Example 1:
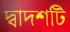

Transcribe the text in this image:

দ্বাদশটি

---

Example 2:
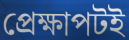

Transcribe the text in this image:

প্রেক্ষাপটই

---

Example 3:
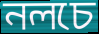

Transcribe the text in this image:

নলচে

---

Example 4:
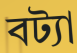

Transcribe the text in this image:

বট্যা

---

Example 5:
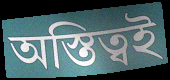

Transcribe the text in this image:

অস্তিত্বই